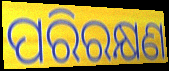
ପରିରକ୍ଷଣ